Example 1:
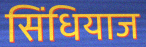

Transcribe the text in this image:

सिंधियाज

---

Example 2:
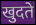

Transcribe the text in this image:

खुदते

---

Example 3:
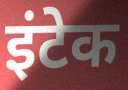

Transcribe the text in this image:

इंटेक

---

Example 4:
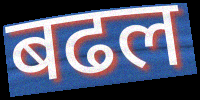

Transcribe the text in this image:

बढल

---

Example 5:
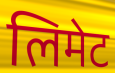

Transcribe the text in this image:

लिमेट